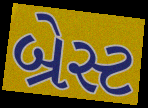
બ્રેસ્ટ